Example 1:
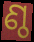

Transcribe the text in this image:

ଣ୍ଠ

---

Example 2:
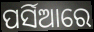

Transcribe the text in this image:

ପର୍ସିଆରେ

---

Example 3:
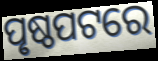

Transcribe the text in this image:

ପୃଷ୍ଠପଟରେ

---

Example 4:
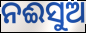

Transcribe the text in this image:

ନଈସୁଅ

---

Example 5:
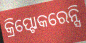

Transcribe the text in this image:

କ୍ରିପ୍ଟୋକରେନ୍ସି